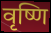
वृष्णि